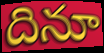
దినూ